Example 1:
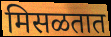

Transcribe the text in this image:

मिसळतात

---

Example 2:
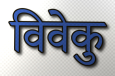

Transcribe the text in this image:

विवेकु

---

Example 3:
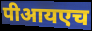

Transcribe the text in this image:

पीआयएच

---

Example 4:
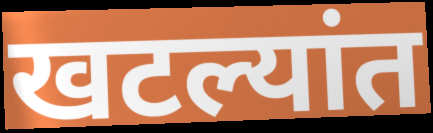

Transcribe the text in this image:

खटल्यांत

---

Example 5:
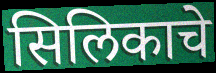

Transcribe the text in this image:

सिलिकाचे